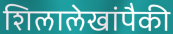
शिलालेखांपैकी